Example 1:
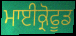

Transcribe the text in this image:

ਮਾਈਕ੍ਰੋਫੂਡ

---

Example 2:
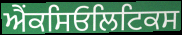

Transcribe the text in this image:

ਐਂਕਸਿਓਲਿਟਿਕਸ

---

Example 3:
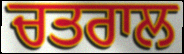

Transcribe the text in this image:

ਚਤਰਾਲ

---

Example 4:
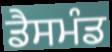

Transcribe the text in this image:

ਡੈਸਮੰਡ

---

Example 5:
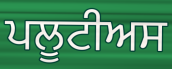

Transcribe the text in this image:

ਪਲੂਟੀਅਸ